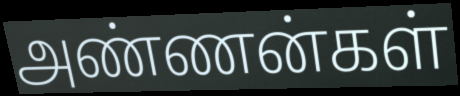
அண்ணன்கள்